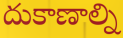
దుకాణాల్ని